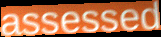
assessed